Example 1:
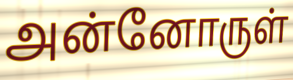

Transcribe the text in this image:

அன்னோருள்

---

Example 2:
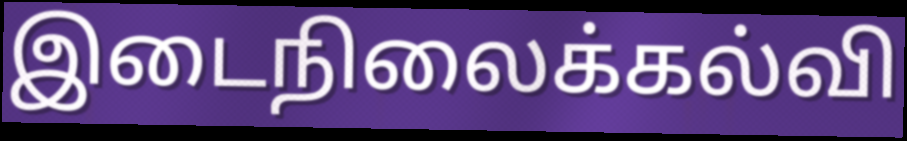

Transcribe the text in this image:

இடைநிலைக்கல்வி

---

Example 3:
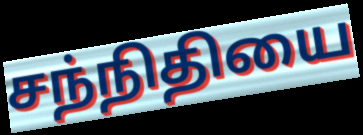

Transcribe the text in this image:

சந்நிதியை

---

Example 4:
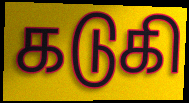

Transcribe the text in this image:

கடுகி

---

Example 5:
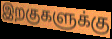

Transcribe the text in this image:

இறகுகளுக்கு